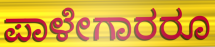
ಪಾಳೇಗಾರರೂ